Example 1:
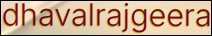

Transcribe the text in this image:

dhavalrajgeera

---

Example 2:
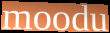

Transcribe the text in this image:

moodu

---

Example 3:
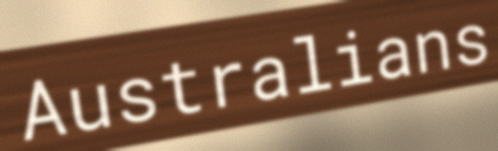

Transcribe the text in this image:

Australians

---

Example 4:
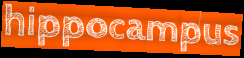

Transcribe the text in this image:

hippocampus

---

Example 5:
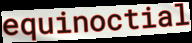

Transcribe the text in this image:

equinoctial